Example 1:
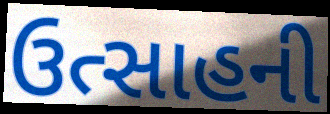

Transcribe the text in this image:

ઉત્સાહની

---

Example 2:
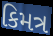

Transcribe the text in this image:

કિમત્ર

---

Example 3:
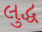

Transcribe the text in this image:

લુદ્ધ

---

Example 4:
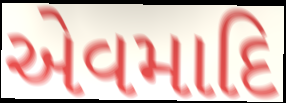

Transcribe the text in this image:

એવમાદિ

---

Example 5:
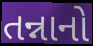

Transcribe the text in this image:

તન્નાનો